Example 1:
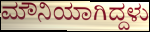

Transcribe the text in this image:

ಮೌನಿಯಾಗಿದ್ದಳು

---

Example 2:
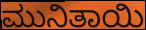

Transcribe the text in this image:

ಮುನಿತಾಯಿ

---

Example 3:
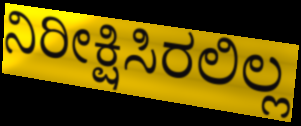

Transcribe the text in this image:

ನಿರೀಕ್ಷಿಸಿರಲಿಲ್ಲ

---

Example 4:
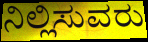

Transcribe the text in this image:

ನಿಲ್ಲಿಸುವರು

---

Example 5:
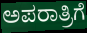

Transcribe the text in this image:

ಅಪರಾತ್ರಿಗೆ